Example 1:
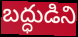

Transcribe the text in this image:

బద్ధుడిని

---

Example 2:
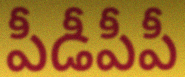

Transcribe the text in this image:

పీడీపీపీ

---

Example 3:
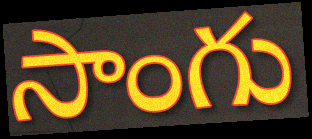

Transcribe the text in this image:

సాంగు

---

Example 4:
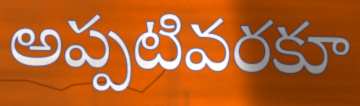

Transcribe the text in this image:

అప్పటివరకూ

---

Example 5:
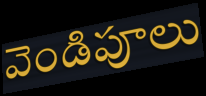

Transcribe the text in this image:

వెండిపూలు